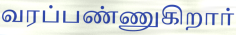
வரப்பண்ணுகிறார்